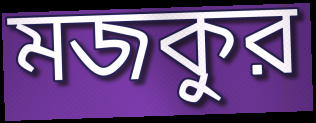
মজকুর